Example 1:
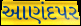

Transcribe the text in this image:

આણંદપર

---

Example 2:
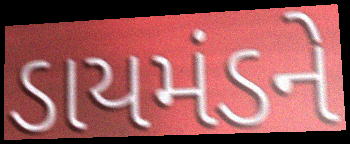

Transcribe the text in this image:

ડાયમંડને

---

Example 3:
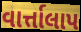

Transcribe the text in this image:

વાર્ત્તાલાપ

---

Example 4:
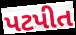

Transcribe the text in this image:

પટપીત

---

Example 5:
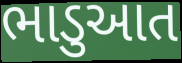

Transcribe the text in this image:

ભાડુઆત